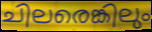
ചിലരെങ്കിലും